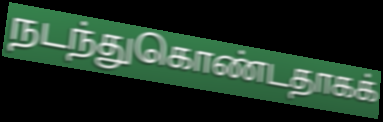
நடந்துகொண்டதாகக்